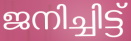
ജനിച്ചിട്ട്